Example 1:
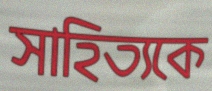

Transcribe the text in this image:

সাহিত্যকে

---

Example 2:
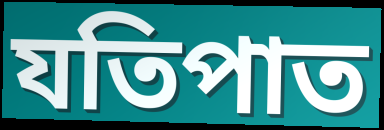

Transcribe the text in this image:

যতিপাত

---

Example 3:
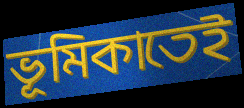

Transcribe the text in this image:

ভূমিকাতেই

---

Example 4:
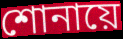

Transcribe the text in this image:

শোনায়ে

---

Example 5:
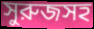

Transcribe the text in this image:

সুরুজসহ